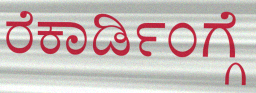
ರೆಕಾರ್ಡಿಂಗ್ಗೆ